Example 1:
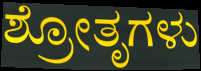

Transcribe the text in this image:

ಶ್ರೋತೃಗಳು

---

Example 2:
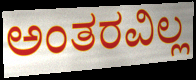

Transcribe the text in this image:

ಅಂತರವಿಲ್ಲ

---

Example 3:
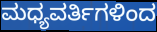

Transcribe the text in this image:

ಮಧ್ಯವರ್ತಿಗಳಿಂದ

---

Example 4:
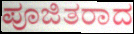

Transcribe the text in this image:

ಪೂಜಿತರಾದ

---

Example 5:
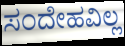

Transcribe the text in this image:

ಸಂದೇಹವಿಲ್ಲ